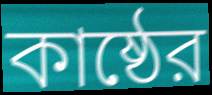
কাষ্ঠের